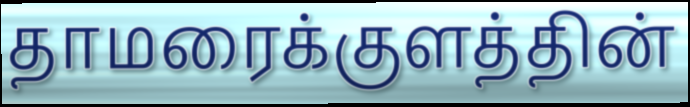
தாமரைக்குளத்தின்